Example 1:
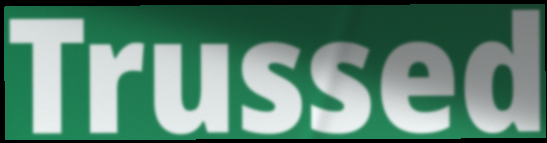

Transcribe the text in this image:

Trussed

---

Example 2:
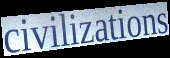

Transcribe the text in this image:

civilizations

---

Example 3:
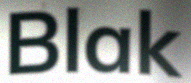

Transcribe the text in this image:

Blak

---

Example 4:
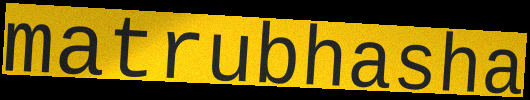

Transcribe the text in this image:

matrubhasha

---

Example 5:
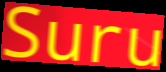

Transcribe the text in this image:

Suru